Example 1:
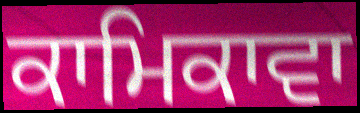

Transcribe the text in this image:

ਕਾਮਿਕਾਵਾ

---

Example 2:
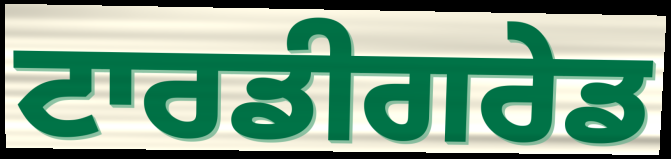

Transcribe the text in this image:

ਟਾਰਡੀਗਰੇਡ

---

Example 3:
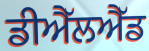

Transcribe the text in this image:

ਡੀਐੱਲਐੱਡ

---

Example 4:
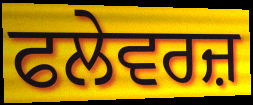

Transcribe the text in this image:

ਫਲੇਵਰਜ਼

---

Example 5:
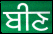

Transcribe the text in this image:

ਬੀਣ